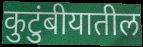
कुटुंबीयातील